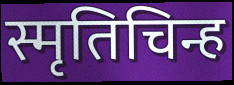
स्मृतिचिन्ह